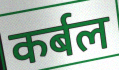
कर्बल